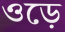
ওড়ে